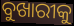
ବୁଖାରୀକୁ